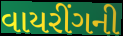
વાયરીંગની